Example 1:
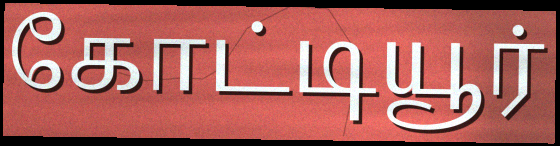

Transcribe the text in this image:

கோட்டியூர்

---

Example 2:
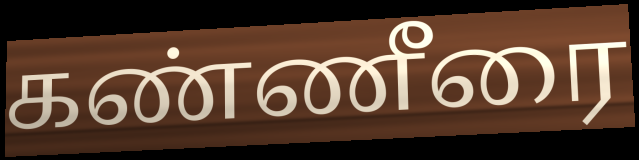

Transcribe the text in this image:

கண்ணீரை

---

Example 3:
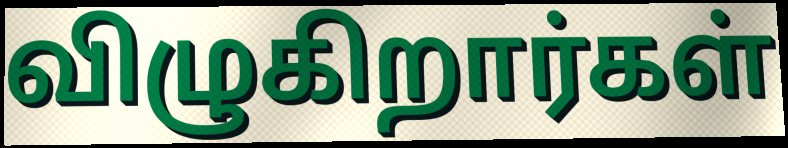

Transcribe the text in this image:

விழுகிறார்கள்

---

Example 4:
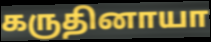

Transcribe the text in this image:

கருதினாயா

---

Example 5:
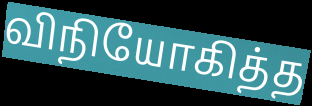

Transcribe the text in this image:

விநியோகித்த